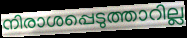
നിരാശപ്പെടുത്താറില്ല